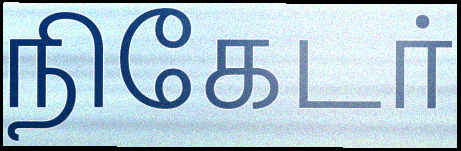
நிகேடர்